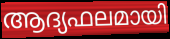
ആദ്യഫലമായി